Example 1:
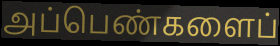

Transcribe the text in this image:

அப்பெண்களைப்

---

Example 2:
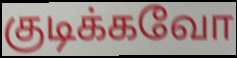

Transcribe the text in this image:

குடிக்கவோ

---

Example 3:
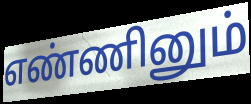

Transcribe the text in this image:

எண்ணினும்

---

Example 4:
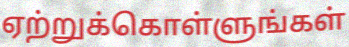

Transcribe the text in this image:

ஏற்றுக்கொள்ளுங்கள்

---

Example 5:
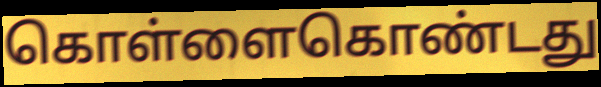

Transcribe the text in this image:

கொள்ளைகொண்டது